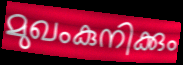
മുഖംകുനിക്കും